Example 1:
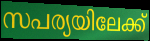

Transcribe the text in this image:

സപര്യയിലേക്ക്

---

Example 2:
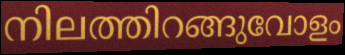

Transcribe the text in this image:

നിലത്തിറങ്ങുവോളം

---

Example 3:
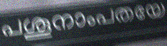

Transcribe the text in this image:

പശൂനാംപതയേ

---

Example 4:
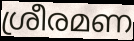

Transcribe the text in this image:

ശ്രീരമണ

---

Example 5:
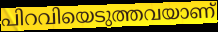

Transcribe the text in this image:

പിറവിയെടുത്തവയാണ്